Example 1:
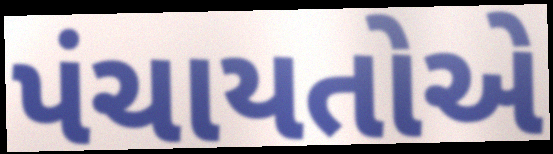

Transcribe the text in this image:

પંચાયતોએ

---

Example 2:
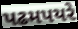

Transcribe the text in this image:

પઢમપયરે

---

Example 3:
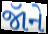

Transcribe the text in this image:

જૉને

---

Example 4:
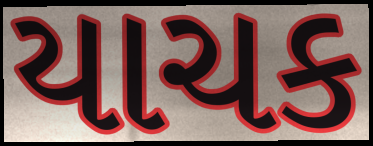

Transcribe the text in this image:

યાચક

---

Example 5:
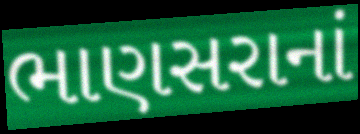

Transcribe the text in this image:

ભાણસરાનાં